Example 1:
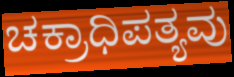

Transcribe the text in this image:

ಚಕ್ರಾಧಿಪತ್ಯವು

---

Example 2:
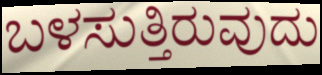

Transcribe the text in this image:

ಬಳಸುತ್ತಿರುವುದು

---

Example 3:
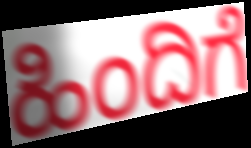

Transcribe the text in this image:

ಹಿಂದಿಗೆ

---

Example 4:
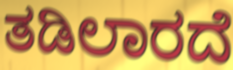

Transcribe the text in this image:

ತಡಿಲಾರದೆ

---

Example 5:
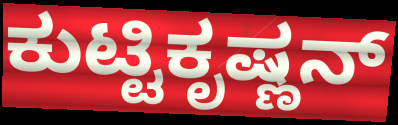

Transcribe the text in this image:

ಕುಟ್ಟಿಕೃಷ್ಣನ್